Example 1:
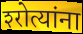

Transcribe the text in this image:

श्रोत्यांना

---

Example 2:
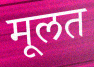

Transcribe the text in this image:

मूलत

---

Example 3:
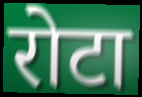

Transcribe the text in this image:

रोटा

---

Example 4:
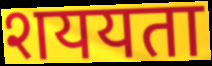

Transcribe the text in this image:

शययता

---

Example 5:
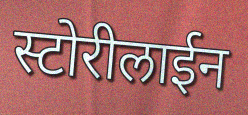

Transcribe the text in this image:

स्टोरीलाईन